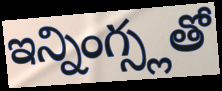
ఇన్నింగ్స్లతో